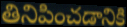
తినిపించడానికి